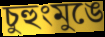
চুহুংমুঙে